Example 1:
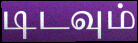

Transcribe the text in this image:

டிடவும்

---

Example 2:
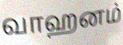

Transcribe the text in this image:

வாஹனம்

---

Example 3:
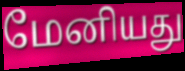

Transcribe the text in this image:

மேனியது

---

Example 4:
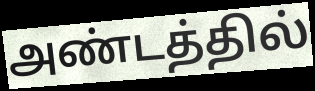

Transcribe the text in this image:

அண்டத்தில்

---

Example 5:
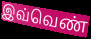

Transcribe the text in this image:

இவ்வெண்